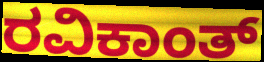
ರವಿಕಾಂತ್